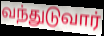
வந்துடுவார்